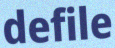
defile